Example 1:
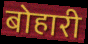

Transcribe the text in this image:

बोहारी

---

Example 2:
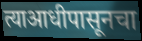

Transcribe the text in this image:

त्याआधीपासूनचा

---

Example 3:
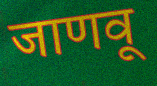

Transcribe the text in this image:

जाणवू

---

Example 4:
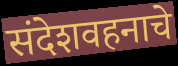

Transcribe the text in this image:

संदेशवहनाचे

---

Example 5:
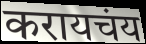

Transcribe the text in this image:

करायचंय